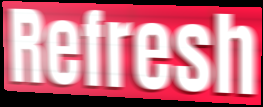
Refresh